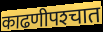
काढणीपश्‍चात